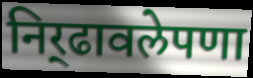
निर्ढावलेपणा